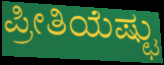
ಪ್ರೀತಿಯೆಷ್ಟು